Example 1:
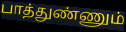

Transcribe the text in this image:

பாத்துண்ணும்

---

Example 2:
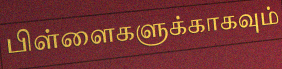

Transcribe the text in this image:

பிள்ளைகளுக்காகவும்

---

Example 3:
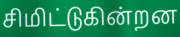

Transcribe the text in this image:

சிமிட்டுகின்றன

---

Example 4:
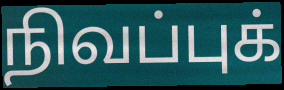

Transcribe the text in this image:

நிவப்புக்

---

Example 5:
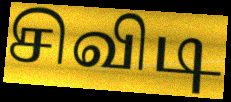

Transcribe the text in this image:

சிவிடி